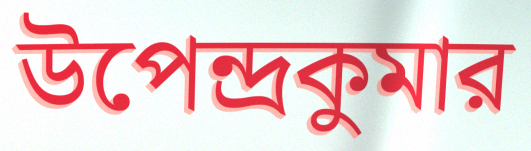
উপেন্দ্রকুমার